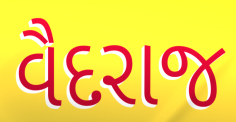
વૈદરાજ